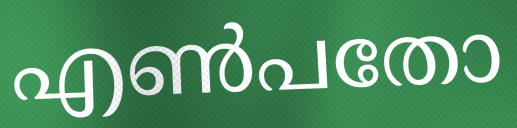
എൺപതോ